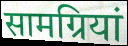
सामग्रियां